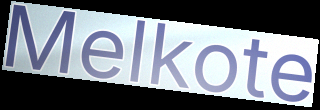
Melkote